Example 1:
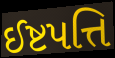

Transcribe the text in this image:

ઈષ્ટપત્તિ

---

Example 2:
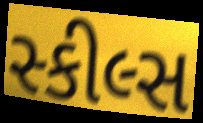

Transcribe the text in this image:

સ્કીલ્સ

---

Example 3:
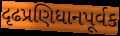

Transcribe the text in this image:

દૃઢપ્રણિધાનપૂર્વક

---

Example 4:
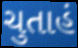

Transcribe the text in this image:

ચુતાહં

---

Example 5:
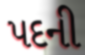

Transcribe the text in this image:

પદની